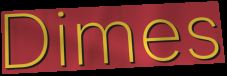
Dimes